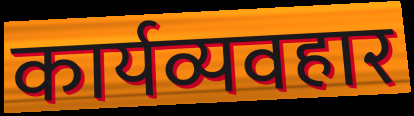
कार्यव्यवहार